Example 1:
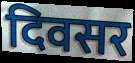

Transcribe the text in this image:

दिवसर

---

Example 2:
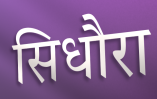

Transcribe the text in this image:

सिधौरा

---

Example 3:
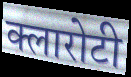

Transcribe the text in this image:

क्लारोटी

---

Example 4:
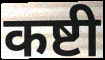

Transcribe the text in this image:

कष्टी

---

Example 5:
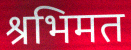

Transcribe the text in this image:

श्रभिमत